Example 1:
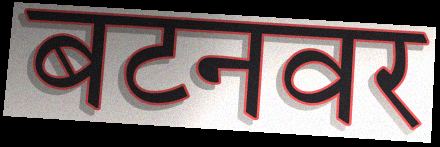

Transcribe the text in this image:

बटनवर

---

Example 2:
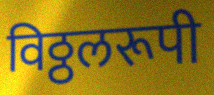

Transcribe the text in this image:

विठ्ठलरूपी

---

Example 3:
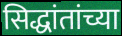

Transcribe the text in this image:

सिद्धांतांच्या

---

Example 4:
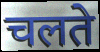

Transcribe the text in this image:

चलते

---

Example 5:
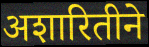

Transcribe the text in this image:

अशारितीने